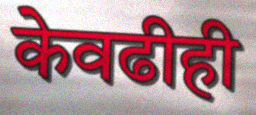
केवढीही